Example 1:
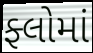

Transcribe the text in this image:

ફ્લોમાં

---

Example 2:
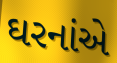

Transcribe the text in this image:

ઘરનાંએ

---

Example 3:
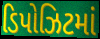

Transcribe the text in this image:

ડિપોઝિટમાં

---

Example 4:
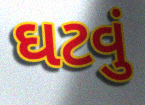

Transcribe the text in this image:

ઘટવું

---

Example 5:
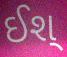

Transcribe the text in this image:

ઈશ્